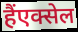
हैंएक्सेल